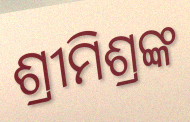
ଶ୍ରୀମିଶ୍ରଙ୍କ